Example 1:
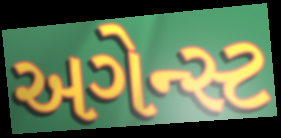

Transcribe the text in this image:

અગેન્સ્ટ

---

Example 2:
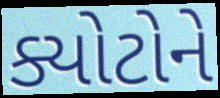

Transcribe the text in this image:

ક્યોટોને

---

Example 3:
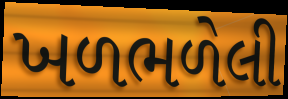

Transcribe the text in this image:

ખળભળેલી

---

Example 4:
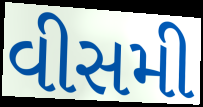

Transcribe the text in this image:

વીસમી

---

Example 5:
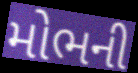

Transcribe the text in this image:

મોભની